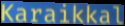
Karaikkal